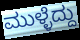
ಮುಳ್ಳೆದ್ದು